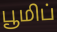
பூமிப்